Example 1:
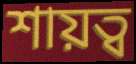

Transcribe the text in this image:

শায়ত্ব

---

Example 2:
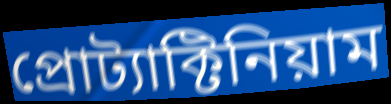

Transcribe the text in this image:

প্রোট্যাক্টিনিয়াম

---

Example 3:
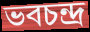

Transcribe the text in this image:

ভবচন্দ্র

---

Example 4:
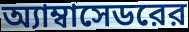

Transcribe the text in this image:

অ্যাম্বাসেডরের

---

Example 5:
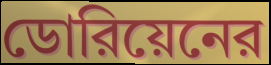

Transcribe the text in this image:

ডোরিয়েনের